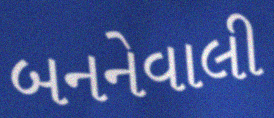
બનનેવાલી